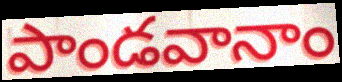
పాండవానాం